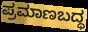
ಪ್ರಮಾಣಬದ್ಧ